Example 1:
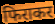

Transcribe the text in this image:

फिराकर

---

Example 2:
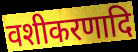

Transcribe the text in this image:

वशीकरणादि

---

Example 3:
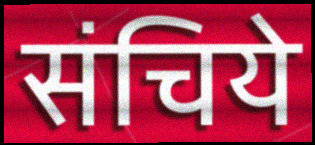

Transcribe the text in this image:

संचिये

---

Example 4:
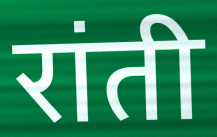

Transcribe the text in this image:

रांती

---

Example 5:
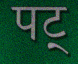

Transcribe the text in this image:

पट्